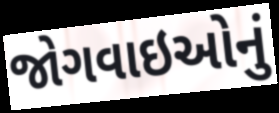
જોગવાઇઓનું